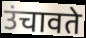
उंचावते